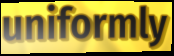
uniformly